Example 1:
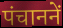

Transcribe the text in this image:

पंचाननें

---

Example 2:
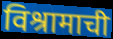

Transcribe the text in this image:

विश्रामाची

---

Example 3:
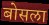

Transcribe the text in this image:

बोसला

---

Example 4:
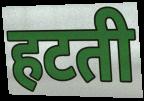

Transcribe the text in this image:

हटती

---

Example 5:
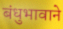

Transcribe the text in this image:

बंधुभावाने